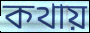
কথায়